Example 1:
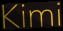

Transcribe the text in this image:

Kimi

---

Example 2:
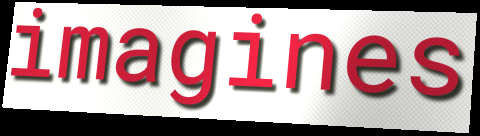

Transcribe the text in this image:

imagines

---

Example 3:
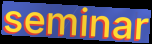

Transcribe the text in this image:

seminar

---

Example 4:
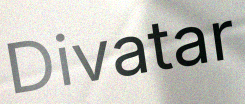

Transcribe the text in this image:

Divatar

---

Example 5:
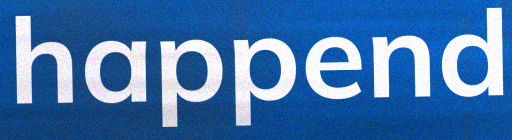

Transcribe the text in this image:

happend